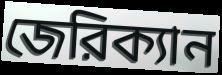
জেরিক্যান